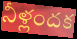
నీళ్లందక